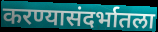
करण्यासंदर्भातला